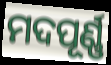
ମଦପୂର୍ଣ୍ଣ